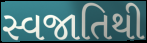
સ્વજાતિથી